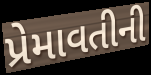
પ્રેમાવતીની